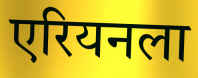
एरियनला